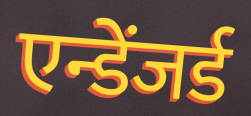
एन्डेंजर्ड